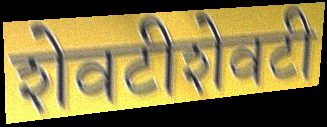
शेवटीशेवटी